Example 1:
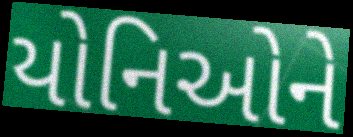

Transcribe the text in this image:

યોનિઓને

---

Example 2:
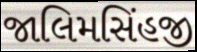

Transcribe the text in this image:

જાલિમસિંહજી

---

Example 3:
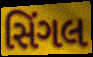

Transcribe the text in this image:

સિંગલ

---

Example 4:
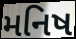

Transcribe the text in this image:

મનિષ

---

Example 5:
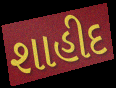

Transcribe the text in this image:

શાહીદ